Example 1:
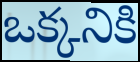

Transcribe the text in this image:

ఒక్కనికి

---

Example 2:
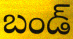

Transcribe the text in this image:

బండ్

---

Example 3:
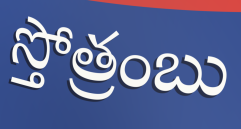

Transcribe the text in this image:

స్తోత్రంబు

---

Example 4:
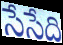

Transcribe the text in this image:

సేసేది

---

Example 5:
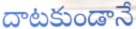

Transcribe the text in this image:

దాటకుండానే